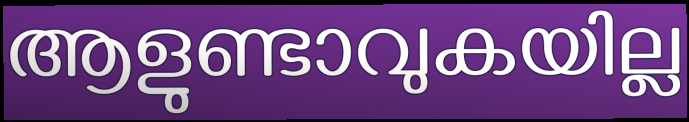
ആളുണ്ടാവുകയില്ല